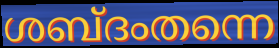
ശബ്ദംതന്നെ